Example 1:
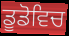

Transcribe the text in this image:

ਡੂਡੋਵਿਚ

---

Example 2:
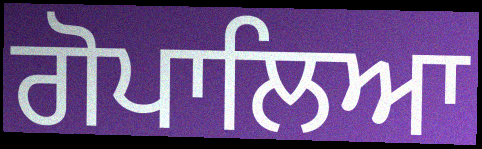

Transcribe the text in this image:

ਗੋਪਾਲਿਆ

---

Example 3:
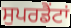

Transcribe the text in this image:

ਸੁਪਰਡੈਂਟਾਂ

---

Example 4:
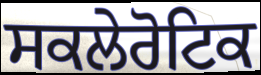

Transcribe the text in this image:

ਸਕਲੇਰੋਟਿਕ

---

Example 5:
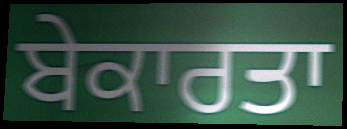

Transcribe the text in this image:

ਬੇਕਾਰਤਾ